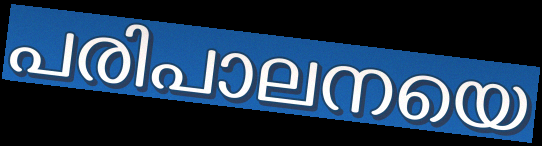
പരിപാലനയെ